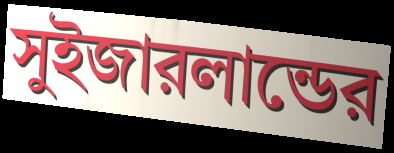
সুইজারলান্ডের